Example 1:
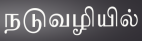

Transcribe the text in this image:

நடுவழியில்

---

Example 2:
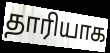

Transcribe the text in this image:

தாரியாக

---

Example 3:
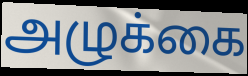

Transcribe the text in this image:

அழுக்கை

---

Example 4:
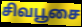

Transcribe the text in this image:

சிவபூசை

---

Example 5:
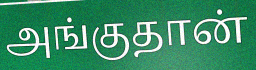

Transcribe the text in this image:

அங்குதான்